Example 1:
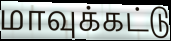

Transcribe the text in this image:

மாவுக்கட்டு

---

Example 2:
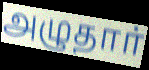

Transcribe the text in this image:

அழுதார்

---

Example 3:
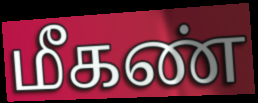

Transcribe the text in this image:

மீகண்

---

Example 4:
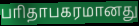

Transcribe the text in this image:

பரிதாபகரமானது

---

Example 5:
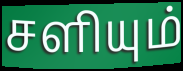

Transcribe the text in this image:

சளியும்